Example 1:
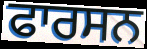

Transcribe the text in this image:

ਫਾਰਸਨ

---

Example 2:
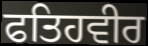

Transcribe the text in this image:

ਫਤਿਹਵੀਰ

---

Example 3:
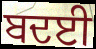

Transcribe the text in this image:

ਬਦਈ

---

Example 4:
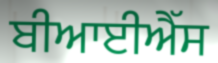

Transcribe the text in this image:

ਬੀਆਈਐੱਸ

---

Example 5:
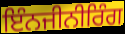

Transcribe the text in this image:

ਇੰਨਜੀਨੀਰਿੰਗ